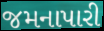
જમનાપારી